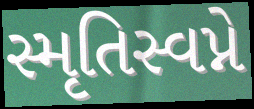
સ્મૃતિસ્વપ્ને